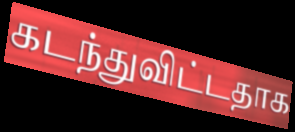
கடந்துவிட்டதாக